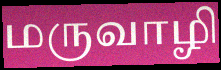
மருவாழி